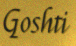
Goshti